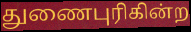
துணைபுரிகின்ற